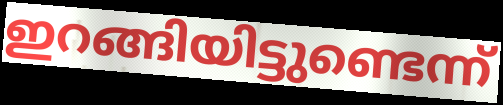
ഇറങ്ങിയിട്ടുണ്ടെന്ന്